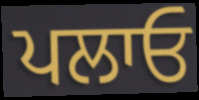
ਪਲਾਓ